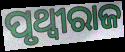
ପୃଥ୍ବୀରାଜ